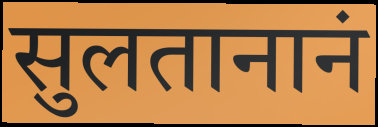
सुलतानानं